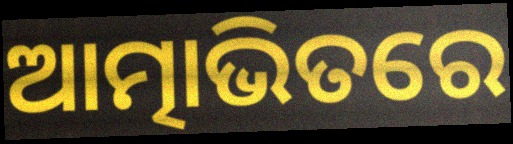
ଆତ୍ମାଭିତରେ